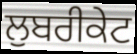
ਲੁਬਰੀਕੇਟ